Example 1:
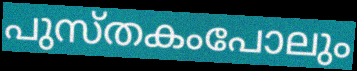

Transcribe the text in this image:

പുസ്തകംപോലും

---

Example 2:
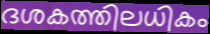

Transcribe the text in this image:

ദശകത്തിലധികം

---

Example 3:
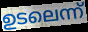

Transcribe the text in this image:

ഉടലെന്ന്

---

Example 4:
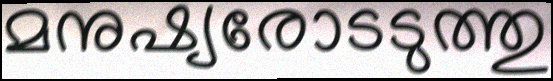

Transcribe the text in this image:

മനുഷ്യരോടടുത്തു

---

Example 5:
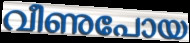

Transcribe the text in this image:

വീണുപോയ